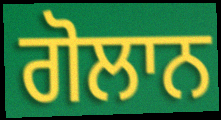
ਗੋਲਾਨ